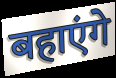
बहाएंगे